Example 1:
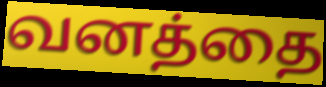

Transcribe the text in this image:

வனத்தை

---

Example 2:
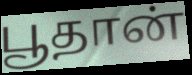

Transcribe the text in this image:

பூதான்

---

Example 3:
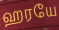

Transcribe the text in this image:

ஹரயே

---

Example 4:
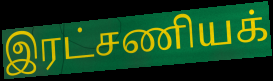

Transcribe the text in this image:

இரட்சணியக்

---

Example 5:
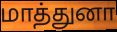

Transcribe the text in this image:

மாத்துனா